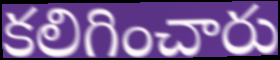
కలిగించారు